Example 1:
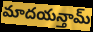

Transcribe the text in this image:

మాదయన్తామ్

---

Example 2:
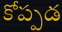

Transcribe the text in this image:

కోప్పడ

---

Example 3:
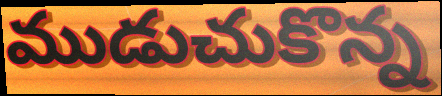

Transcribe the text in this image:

ముడుచుకొన్న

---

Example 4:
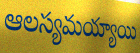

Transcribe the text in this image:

ఆలస్యమయ్యాయి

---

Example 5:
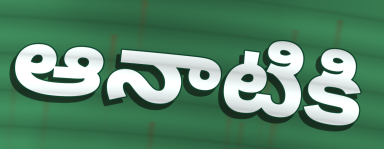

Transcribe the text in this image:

ఆనాటికి